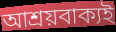
আশ্ৰয়বাক্যই